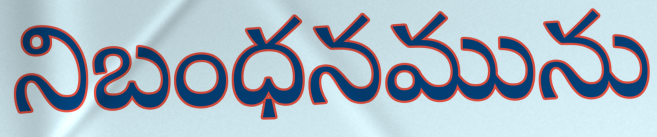
నిబంధనమును